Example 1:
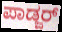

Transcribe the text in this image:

ಪಾಡ್ಜರ್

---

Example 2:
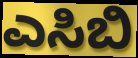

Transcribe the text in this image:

ಎಸಿಬಿ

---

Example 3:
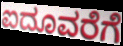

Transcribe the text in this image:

ಐದೂವರೆಗೆ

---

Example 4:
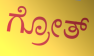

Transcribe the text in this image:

ಗ್ರೋತ್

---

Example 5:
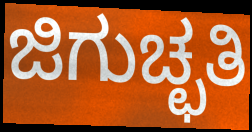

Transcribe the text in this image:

ಜಿಗುಚ್ಛತಿ